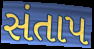
સંતાપ